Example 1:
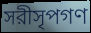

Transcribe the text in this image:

সরীসৃপগণ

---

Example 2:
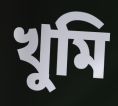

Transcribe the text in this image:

খুমি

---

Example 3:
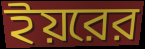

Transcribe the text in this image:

ইয়রের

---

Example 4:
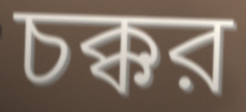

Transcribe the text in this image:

চক্কর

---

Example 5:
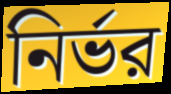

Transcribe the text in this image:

নির্ভর